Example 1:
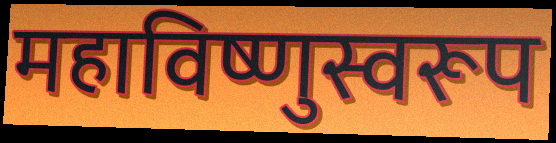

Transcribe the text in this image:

महाविष्णुस्वरूप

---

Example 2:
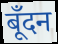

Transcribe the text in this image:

बूँदन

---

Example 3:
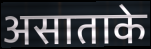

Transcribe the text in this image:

असाताके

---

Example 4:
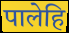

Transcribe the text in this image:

पालेहि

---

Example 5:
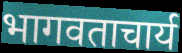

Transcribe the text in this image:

भागवताचार्य